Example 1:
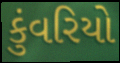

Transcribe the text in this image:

કુંવરિયો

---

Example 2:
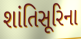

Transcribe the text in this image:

શાંતિસૂરિના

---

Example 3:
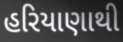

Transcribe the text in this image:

હરિયાણાથી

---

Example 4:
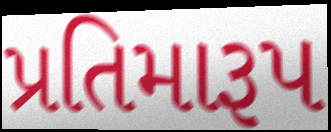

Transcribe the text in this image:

પ્રતિમારૂપ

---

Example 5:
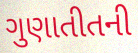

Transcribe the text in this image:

ગુણાતીતની